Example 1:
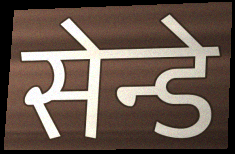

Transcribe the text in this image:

सेन्डे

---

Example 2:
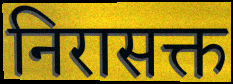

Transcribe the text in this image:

निरासक्त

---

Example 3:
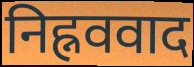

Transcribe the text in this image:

निह्नववाद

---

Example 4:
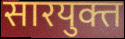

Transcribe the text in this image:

सारयुक्त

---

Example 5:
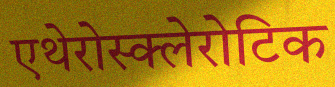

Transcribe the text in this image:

एथेरोस्क्लेरोटिक